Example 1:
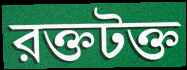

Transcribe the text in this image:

রক্তটক্ত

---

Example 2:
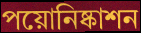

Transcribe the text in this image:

পয়োনিষ্কাশন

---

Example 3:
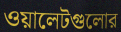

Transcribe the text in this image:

ওয়ালেটগুলোর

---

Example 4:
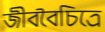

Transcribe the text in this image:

জীববৈচিত্রে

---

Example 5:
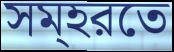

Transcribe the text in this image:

সম্হরতে